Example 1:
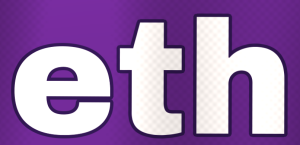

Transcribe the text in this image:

eth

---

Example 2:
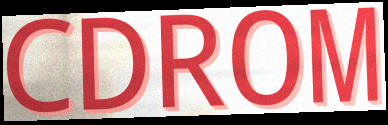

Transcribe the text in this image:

CDROM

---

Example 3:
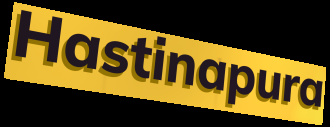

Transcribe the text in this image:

Hastinapura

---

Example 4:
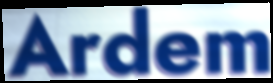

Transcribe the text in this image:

Ardem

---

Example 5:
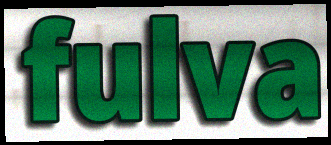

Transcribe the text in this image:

fulva